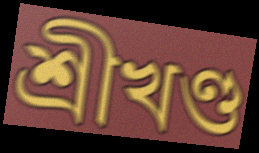
শ্রীখণ্ড